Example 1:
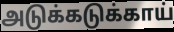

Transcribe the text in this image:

அடுக்கடுக்காய்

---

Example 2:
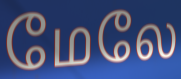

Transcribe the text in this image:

மேலே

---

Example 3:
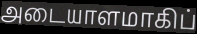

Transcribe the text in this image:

அடையாளமாகிப்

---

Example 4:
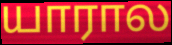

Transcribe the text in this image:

யாரால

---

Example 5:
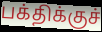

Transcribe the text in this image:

பக்திக்குச்